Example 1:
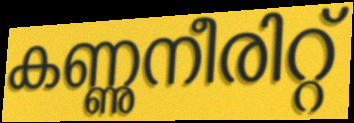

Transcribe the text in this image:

കണ്ണുനീരിറ്റ്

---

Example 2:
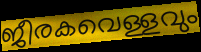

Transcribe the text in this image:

ജീരകവെള്ളവും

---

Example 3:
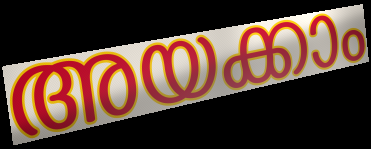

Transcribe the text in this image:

അയക്കാം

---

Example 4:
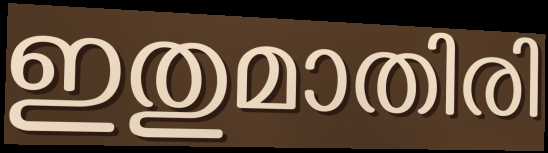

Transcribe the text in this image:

ഇതുമാതിരി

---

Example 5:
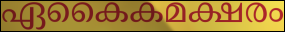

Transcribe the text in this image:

ഏകൈകമക്ഷരം